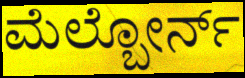
ಮೆಲ್ಬೋರ್ನ್